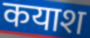
कयाश